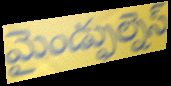
మైండ్ఫుల్నెస్